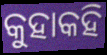
କୁହାକହି